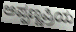
ಅಪ್ಪಣ್ಣಪ್ರಿಯ